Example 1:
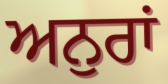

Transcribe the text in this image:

ਅਨੁਰਾਂ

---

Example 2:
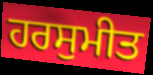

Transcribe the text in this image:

ਹਰਸੁਮੀਤ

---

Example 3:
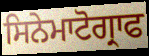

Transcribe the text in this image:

ਸਿਨੇਮਾਟੋਗ੍ਰਾਫ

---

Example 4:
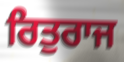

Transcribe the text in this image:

ਰਿਤੁਰਾਜ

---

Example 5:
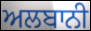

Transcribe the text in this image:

ਅਲਬਾਨੀ